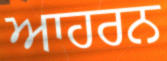
ਆਹਰਨ